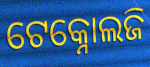
ଟେକ୍ନୋଲଜି